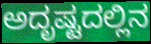
ಅದೃಷ್ಟದಲ್ಲಿನ